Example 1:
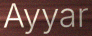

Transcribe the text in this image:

Ayyar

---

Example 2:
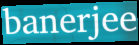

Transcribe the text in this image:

banerjee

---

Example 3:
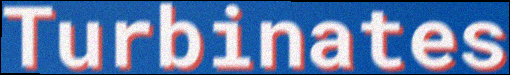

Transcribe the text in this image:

Turbinates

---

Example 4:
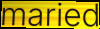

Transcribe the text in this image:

maried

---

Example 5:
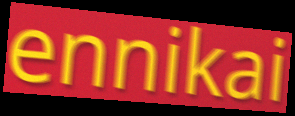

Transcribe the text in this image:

ennikai